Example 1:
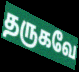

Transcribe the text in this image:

தருகவே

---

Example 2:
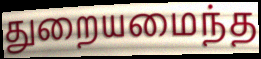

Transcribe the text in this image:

துறையமைந்த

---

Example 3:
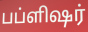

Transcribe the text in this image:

பப்ளிஷர்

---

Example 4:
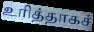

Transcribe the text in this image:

உரித்தாகச்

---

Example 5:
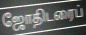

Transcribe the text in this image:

ஜோதிடரைப்